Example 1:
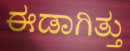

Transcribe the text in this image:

ಈಡಾಗಿತ್ತು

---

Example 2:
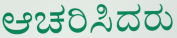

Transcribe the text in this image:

ಆಚರಿಸಿದರು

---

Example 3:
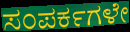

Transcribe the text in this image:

ಸಂಪರ್ಕಗಳೇ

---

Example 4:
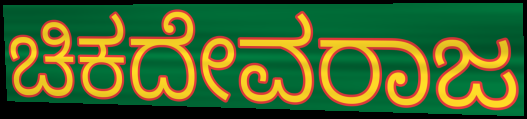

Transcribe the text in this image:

ಚಿಕದೇವರಾಜ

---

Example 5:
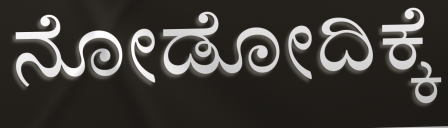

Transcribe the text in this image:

ನೋಡೋದಿಕ್ಕೆ